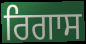
ਰਿਗਾਸ